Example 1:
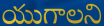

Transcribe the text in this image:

యుగాలని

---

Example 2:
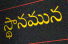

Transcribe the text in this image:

స్థానమున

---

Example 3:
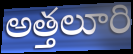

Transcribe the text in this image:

అత్తలూరి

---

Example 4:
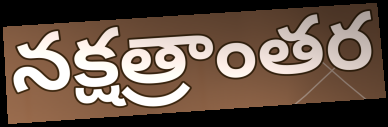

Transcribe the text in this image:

నక్షత్రాంతర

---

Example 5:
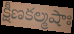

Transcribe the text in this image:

క్షీణకల్మషాః